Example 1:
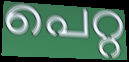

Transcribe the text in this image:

പെറ്റ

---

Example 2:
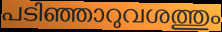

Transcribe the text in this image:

പടിഞ്ഞാറുവശത്തും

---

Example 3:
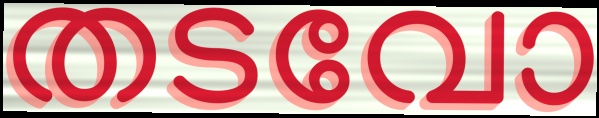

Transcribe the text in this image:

തടവോ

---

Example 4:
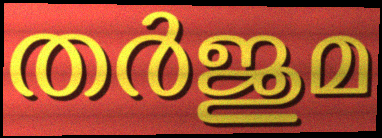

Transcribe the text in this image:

തർജുമ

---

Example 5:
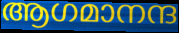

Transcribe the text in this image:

ആഗമാനന്ദ